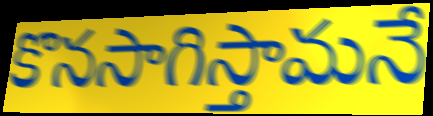
కొనసాగిస్తామనే